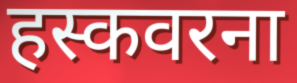
हस्कवरना